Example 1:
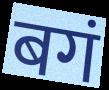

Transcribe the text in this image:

बगं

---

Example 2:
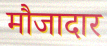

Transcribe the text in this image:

मौजादार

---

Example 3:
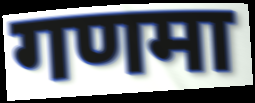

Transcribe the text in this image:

गणमा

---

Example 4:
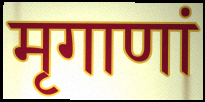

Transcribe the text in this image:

मृगाणां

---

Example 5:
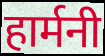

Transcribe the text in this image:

हार्मनी